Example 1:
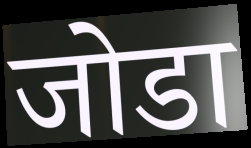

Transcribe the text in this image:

जोडा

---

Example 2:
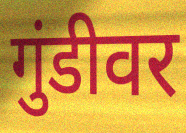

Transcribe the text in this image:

गुंडीवर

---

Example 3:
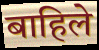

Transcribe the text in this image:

बाहिले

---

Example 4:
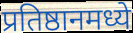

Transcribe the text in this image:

प्रतिष्ठानमध्ये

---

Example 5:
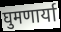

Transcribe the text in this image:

घुमणार्या